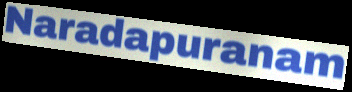
Naradapuranam